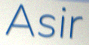
Asir